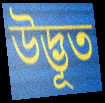
উদ্ভূত